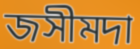
জসীমদা